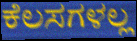
ಕೆಲಸಗಳಲ್ಲ